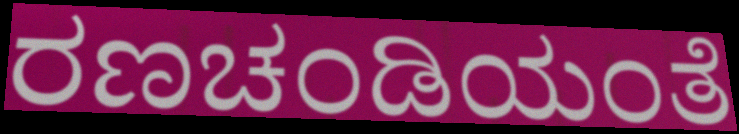
ರಣಚಂಡಿಯಂತೆ